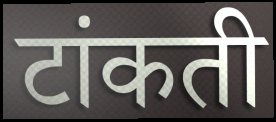
टांकती